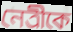
নেত্রীকে